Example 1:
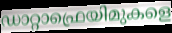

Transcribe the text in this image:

ഡാറ്റാഫ്രെയിമുകളെ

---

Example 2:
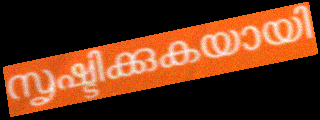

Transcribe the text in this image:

സൃഷ്ടിക്കുകയായി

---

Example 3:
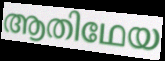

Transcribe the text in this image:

ആതിഥേയ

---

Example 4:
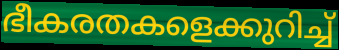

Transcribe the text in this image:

ഭീകരതകളെക്കുറിച്ച്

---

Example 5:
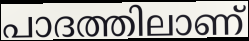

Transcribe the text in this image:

പാദത്തിലാണ്